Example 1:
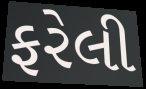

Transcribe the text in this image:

ફરેલી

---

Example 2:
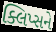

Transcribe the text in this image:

ક્લિપ્સને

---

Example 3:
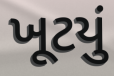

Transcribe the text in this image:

ખૂટયું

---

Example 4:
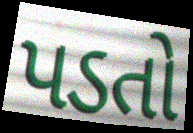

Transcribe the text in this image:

પડતો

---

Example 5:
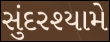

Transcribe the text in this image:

સુંદરશ્યામે